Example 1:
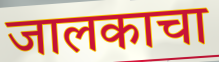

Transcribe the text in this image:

जालकाचा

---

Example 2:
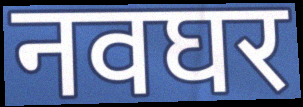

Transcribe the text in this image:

नवघर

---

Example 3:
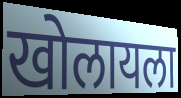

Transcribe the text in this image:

खोलायला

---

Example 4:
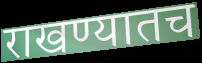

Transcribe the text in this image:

राखण्यातच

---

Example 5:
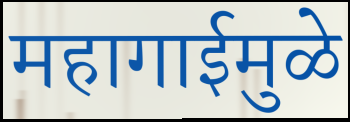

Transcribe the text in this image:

महागाईमुळे